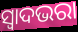
ସ୍ଵାଦଭରା